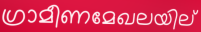
ഗ്രാമീണമേഖലയില്